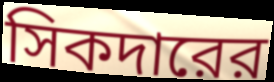
সিকদারের